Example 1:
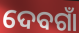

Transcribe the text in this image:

ଦେବଗାଁ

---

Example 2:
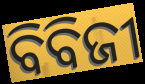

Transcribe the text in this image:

ବିବିଜୀ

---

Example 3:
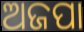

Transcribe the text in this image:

ଅଜପା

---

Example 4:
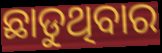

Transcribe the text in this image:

ଛାଡୁଥିବାର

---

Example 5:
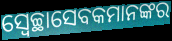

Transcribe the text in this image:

ସ୍ୱେଚ୍ଛାସେବକମାନଙ୍କର